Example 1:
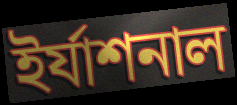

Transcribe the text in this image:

ইর্যাশনাল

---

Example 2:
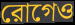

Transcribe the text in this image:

রোগেও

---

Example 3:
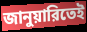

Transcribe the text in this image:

জানুয়ারিতেই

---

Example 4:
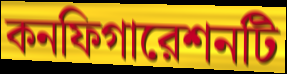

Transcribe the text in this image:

কনফিগারেশনটি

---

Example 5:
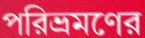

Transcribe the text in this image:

পরিভ্রমণের